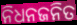
ନିଧନଜନିତ